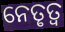
ନେତୃତ୍ଵ